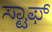
ಸ್ಟಾಫ್